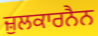
ਜ਼ੁਲਕਾਰਨੈਨ